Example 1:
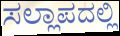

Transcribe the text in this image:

ಸಲ್ಲಾಪದಲ್ಲಿ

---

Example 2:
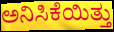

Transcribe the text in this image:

ಅನಿಸಿಕೆಯಿತ್ತು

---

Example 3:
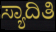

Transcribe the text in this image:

ಸ್ಯಾದಿತಿ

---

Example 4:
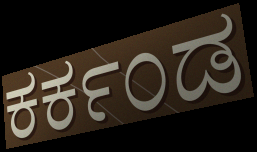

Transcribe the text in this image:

ಕರ್ಕಂಡ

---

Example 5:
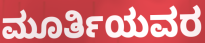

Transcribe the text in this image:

ಮೂರ್ತಿಯವರ